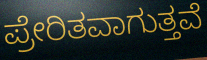
ಪ್ರೇರಿತವಾಗುತ್ತವೆ